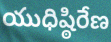
యుధిష్ఠిరేణ